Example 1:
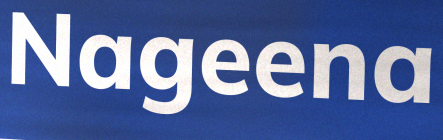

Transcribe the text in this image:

Nageena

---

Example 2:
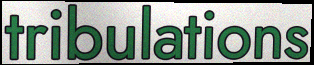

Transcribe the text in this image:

tribulations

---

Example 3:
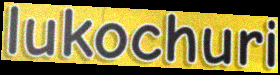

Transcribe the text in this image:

lukochuri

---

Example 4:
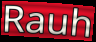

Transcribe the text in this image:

Rauh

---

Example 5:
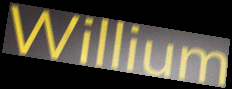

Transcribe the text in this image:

Willium